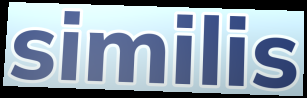
similis